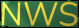
NWS